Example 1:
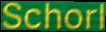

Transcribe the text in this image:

Schorl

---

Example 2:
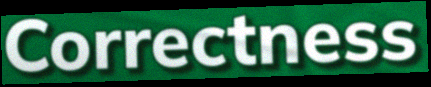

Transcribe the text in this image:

Correctness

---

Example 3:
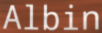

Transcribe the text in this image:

Albin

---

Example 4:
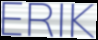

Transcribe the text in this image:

ERIK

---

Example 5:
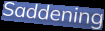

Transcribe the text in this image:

Saddening